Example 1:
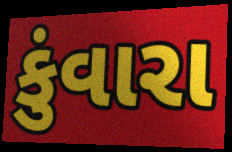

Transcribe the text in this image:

કુંવારા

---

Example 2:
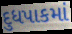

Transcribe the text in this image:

દુધપાકમાં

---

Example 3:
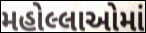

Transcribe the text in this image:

મહોલ્લાઓમાં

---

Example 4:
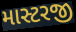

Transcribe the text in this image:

માસ્ટરજી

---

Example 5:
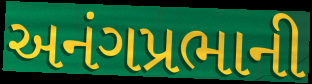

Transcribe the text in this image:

અનંગપ્રભાની